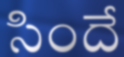
సిందే